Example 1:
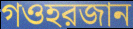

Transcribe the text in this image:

গওহরজান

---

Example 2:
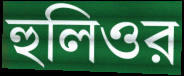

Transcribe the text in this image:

হুলিওর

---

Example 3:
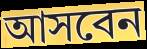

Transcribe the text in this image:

আসবেন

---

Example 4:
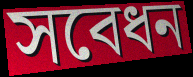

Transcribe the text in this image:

সবেধন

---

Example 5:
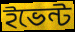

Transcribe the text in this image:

ইভেন্ট